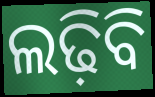
ଲଢ଼ିବି